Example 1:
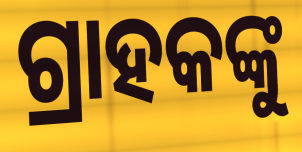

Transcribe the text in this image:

ଗ୍ରାହକଙ୍କୁ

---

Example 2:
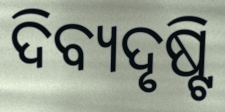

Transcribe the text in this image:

ଦିବ୍ୟଦୃଷ୍ଟି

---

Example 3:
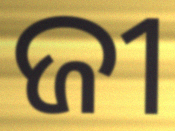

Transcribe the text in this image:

ଜୀ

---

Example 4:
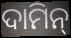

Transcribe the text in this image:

ଦାମିନ୍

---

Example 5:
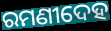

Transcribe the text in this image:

ରମଣୀଦେହ